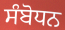
ਸੰਬੋਧਨ